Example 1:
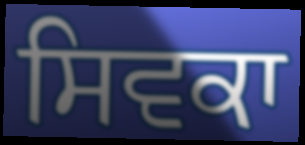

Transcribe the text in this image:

ਸਿਵਕਾ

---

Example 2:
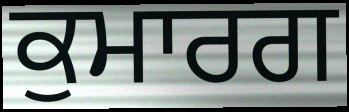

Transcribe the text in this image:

ਕੁਮਾਰਗ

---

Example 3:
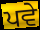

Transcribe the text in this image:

ਪਵੇ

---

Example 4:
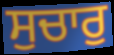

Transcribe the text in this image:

ਸੁਚਾਰੁ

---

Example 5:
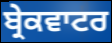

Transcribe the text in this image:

ਬ੍ਰੇਕਵਾਟਰ